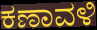
ಕಣಾವಳಿ